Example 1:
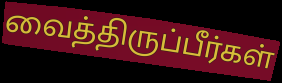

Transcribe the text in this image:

வைத்திருப்பீர்கள்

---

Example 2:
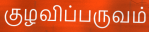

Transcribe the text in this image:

குழவிப்பருவம்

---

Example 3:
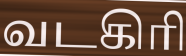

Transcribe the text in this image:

வடகிரி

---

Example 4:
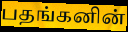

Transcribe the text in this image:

பதங்கனின்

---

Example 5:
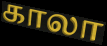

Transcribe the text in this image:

காலா